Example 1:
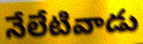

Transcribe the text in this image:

నేలేటివాడు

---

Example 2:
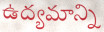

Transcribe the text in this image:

ఉద్యమాన్ని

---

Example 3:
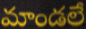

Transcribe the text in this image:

మాండలే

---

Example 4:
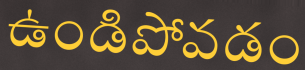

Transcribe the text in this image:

ఉండిపోవడం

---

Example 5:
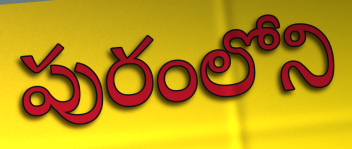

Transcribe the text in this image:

పురంలోని